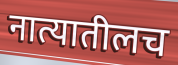
नात्यातीलच